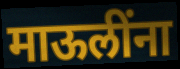
माऊलींना